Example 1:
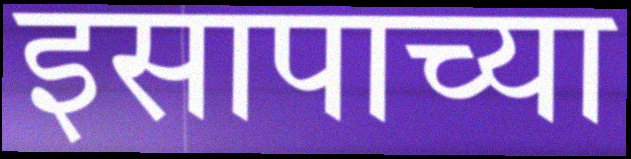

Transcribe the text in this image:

इसापाच्या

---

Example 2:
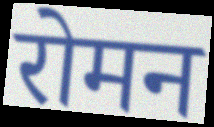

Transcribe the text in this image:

रोमन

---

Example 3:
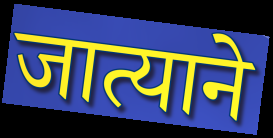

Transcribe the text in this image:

जात्याने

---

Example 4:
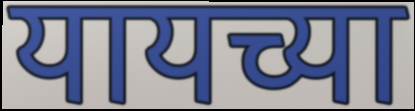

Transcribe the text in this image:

यायच्या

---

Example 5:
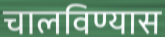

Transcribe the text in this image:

चालविण्यास